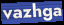
vazhga